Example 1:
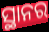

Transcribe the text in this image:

ସ୍ଥାନର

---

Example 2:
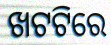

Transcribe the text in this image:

ଖଟଟିରେ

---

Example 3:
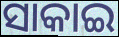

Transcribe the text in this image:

ସାକାଇ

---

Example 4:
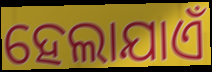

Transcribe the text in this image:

ହେଲାଯାଏଁ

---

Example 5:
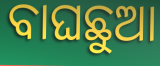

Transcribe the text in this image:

ବାଘଛୁଆ